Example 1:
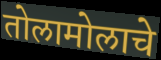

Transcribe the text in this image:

तोलामोलाचे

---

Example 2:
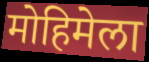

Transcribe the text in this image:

मोहिमेला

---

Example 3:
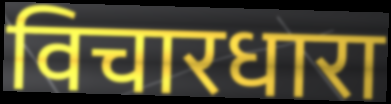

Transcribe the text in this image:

विचारधारा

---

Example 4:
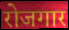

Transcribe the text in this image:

रोजगार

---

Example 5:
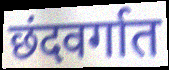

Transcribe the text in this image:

छंदवर्गात